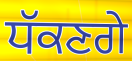
ਧੱਕਣਗੇ